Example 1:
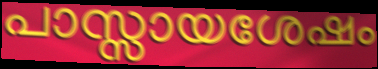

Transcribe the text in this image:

പാസ്സായശേഷം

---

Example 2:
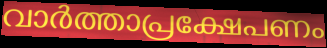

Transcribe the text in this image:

വാർത്താപ്രക്ഷേപണം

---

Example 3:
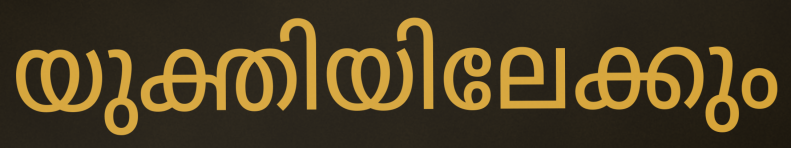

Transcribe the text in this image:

യുക്തിയിലേക്കും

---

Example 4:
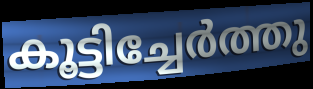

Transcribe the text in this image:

കൂട്ടിച്ചേർത്തു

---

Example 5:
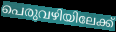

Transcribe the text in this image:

പെരുവഴിയിലേക്ക്